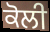
ਕੋਲੀ